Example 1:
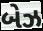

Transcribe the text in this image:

બેઝ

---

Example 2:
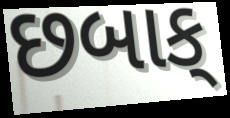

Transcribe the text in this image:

છબાક્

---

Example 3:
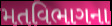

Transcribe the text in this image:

મતવિભાગના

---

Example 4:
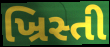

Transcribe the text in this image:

ખ્રિસ્તી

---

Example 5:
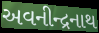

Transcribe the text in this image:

અવનીન્દ્રનાથ